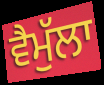
ਵੈਮੁੱਲਾ